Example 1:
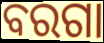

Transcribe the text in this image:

ବରଗା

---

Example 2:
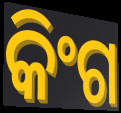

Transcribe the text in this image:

କିଂଗ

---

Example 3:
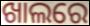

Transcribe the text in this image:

ଖାଲରେ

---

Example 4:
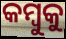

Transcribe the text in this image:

କମ୍ବୁକୁ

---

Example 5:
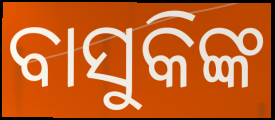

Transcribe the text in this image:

ବାସୁକିଙ୍କ